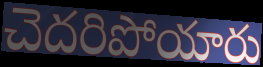
చెదరిపోయారు